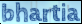
bhartia